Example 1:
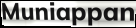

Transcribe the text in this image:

Muniappan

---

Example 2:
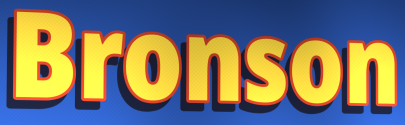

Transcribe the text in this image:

Bronson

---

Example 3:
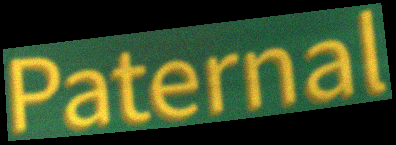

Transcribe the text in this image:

Paternal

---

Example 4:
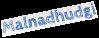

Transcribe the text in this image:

Malnadhudgi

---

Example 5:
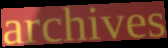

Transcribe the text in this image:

archives